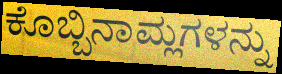
ಕೊಬ್ಬಿನಾಮ್ಲಗಳನ್ನು